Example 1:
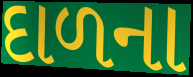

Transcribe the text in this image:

દાળના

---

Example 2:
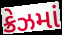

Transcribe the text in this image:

ક્રેઝમાં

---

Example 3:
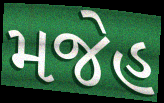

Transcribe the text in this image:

મજેહ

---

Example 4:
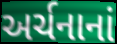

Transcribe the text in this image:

અર્ચનાનાં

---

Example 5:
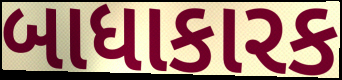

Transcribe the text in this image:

બાધાકારક